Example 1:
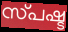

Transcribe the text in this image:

സ്‌പഷ്ട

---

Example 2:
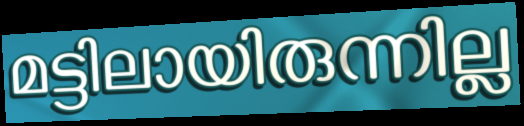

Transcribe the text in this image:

മട്ടിലായിരുന്നില്ല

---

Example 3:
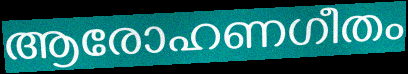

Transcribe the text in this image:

ആരോഹണഗീതം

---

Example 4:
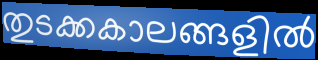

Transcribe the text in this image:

തുടക്കകാലങ്ങളിൽ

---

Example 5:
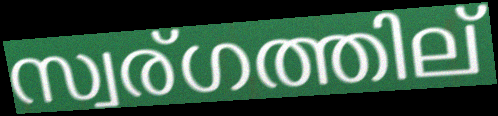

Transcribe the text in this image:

സ്വര്ഗത്തില്